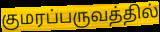
குமரப்பருவத்தில்